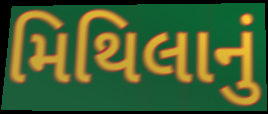
મિથિલાનું